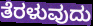
ತೆರಳುವುದು